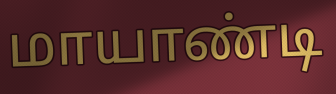
மாயாண்டி